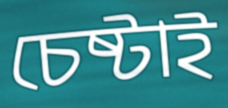
চেষ্টাই